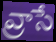
వ్రాసే